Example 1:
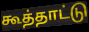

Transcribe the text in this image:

கூத்தாட்டு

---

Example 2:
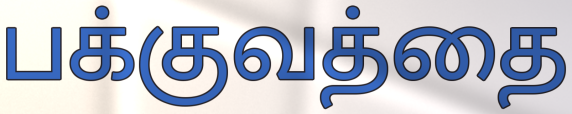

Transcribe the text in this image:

பக்குவத்தை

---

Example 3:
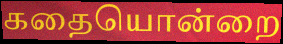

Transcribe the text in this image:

கதையொன்றை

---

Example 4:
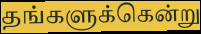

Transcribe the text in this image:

தங்களுக்கென்று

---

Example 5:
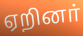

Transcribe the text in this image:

ஏறினர்